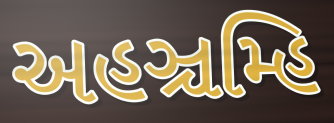
અહઞ્ચમ્હિ